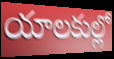
యాలకుల్లో